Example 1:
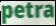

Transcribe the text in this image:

petra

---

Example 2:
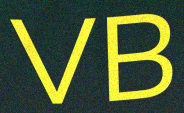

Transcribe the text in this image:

VB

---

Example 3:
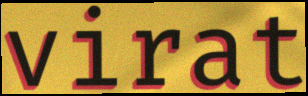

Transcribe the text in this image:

virat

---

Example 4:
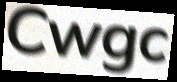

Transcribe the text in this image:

Cwgc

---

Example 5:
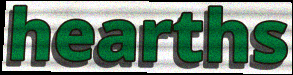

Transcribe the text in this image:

hearths